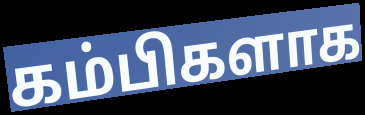
கம்பிகளாக